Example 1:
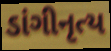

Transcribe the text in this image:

ડાંગીનૃત્ય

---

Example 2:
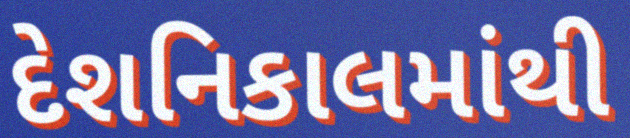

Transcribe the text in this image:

દેશનિકાલમાંથી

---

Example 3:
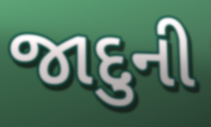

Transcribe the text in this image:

જાદુની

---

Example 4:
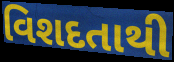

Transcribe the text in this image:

વિશદતાથી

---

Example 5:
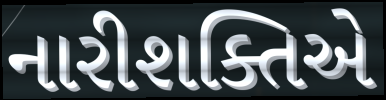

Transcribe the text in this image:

નારીશક્તિએ